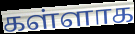
கள்ளாக